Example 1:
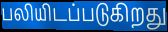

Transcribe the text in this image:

பலியிடப்படுகிறது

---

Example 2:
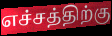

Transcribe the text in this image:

எச்சத்திற்கு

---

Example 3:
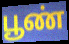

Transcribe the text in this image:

பூண்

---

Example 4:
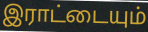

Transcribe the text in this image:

இராட்டையும்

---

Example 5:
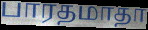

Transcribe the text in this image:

பாரதமாதா